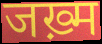
जख़्म